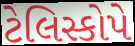
ટેલિસ્કોપે